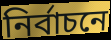
নির্বাচনে